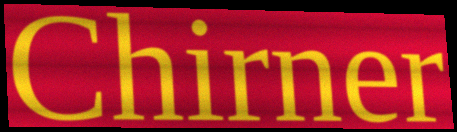
Chirner